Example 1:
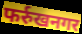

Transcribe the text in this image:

फर्रुखनगर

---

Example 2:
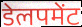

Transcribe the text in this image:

डेलपमेंट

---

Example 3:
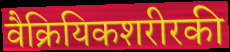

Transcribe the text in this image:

वैक्रियिकशरीरकी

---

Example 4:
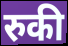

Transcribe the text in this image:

रुकी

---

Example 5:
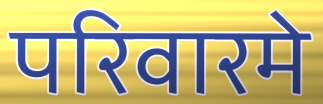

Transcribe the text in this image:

परिवारमे